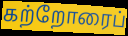
கற்றோரைப்